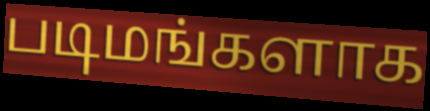
படிமங்களாக